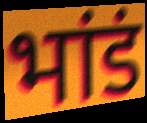
भांडं